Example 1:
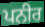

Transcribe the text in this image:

ਪਨੀਰ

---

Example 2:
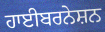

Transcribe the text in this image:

ਹਾਈਬਰਨੇਸ਼ਨ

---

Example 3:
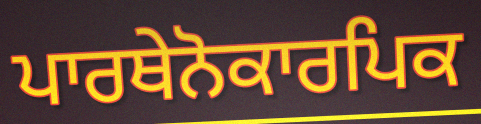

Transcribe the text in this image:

ਪਾਰਥੇਨੋਕਾਰਪਿਕ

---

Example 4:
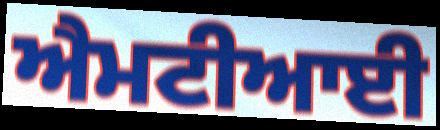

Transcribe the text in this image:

ਐਮਟੀਆਈ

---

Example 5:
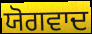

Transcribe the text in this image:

ਯੋਗਵਾਦ